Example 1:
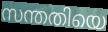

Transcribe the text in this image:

സന്തതിയെ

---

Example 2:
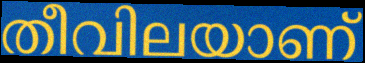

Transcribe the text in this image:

തീവിലയാണ്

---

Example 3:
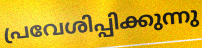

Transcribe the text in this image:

പ്രവേശിപ്പിക്കുന്നു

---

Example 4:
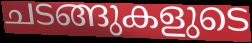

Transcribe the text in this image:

ചടങ്ങുകളുടെ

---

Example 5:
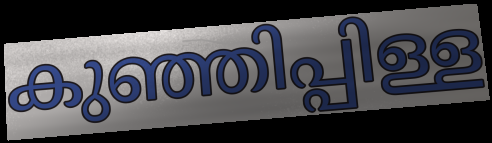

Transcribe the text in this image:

കുഞ്ഞിപ്പിള്ള